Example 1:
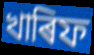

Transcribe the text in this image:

খাৰিফ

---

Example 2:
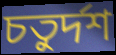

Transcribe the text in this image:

চতুৰ্দশ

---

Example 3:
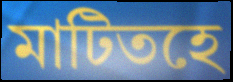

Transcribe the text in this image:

মাটিতহে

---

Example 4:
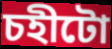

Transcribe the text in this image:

চহীটো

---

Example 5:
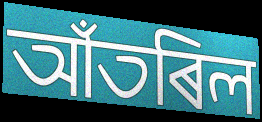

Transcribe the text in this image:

আঁতৰিল